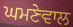
ਘਮਣੇਵਾਲ